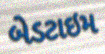
બેડટાઇમ